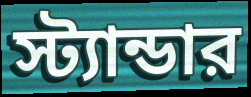
স্ট্যান্ডার